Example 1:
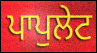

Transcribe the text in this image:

ਪਾਪੁਲੇਟ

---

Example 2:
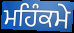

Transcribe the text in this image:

ਮਹਿੰਕਮੇ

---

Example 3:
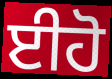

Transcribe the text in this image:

ਈਹੋ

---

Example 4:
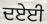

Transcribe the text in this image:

ਦਏਈ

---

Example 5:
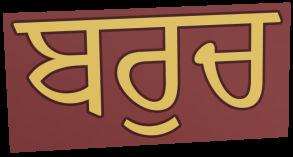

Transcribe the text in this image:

ਬਰੁਚ